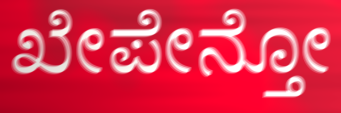
ಖೇಪೇನ್ತೋ